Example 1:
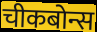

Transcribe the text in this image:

चीकबोन्स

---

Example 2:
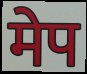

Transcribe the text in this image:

मेप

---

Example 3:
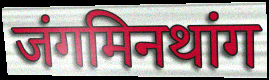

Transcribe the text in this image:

जंगमिनथांग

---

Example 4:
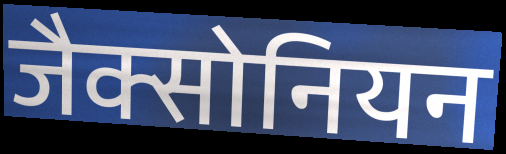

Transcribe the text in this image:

जैक्सोनियन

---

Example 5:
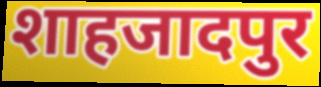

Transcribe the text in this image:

शाहजादपुर